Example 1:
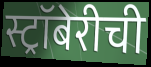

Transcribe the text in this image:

स्ट्रॉबेरीची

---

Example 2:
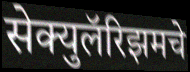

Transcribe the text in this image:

सेक्युलॅरिझमचे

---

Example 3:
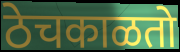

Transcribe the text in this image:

ठेचकाळतो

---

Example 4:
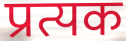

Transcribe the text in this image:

प्रत्यक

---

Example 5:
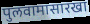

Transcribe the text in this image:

पुलवामासारखा